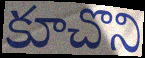
కూచొని